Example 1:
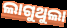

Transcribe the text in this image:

ଲାଗୁଥୁଲା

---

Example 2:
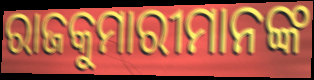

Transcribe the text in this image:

ରାଜକୁମାରୀମାନଙ୍କ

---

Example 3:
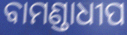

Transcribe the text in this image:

ବାମଣ୍ଡାଧୀପ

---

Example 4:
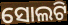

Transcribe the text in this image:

ସୋଲଟି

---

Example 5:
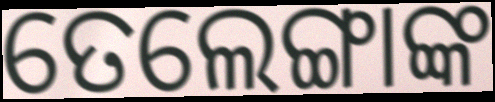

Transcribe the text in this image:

ତେଲେଙ୍ଗାଙ୍କ